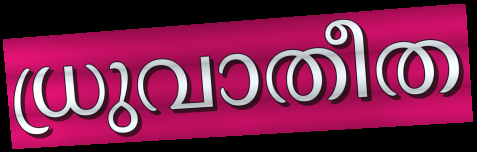
ധ്രുവാതീത